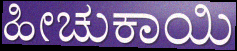
ಹೀಚುಕಾಯಿ